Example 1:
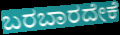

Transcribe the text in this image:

ಬರಬಾರದೇಕೆ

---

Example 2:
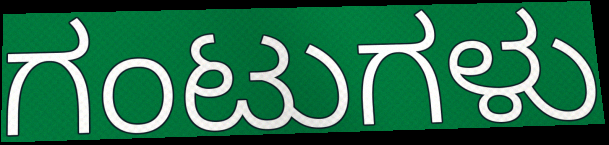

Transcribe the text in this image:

ಗಂಟುಗಳು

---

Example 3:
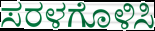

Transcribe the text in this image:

ಸರಳಗೊಳಿಸಿ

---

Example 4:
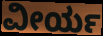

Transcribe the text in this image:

ವೀರ್ಯ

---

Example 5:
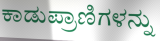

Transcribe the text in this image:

ಕಾಡುಪ್ರಾಣಿಗಳನ್ನು